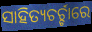
ସାହିତ୍ୟଚର୍ଚ୍ଚାରେ